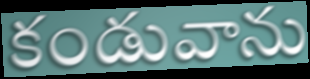
కండువాను